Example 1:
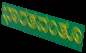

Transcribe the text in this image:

ಭಾರತವಂತೂ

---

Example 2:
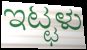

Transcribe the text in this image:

ಇಟ್ಟಳು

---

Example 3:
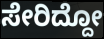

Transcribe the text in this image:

ಸೇರಿದ್ದೋ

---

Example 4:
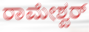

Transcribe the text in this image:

ರಾಮೇಶ್ವರ್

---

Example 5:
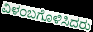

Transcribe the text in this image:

ವಿಳಂಬಗೊಳಿಸಿದರು